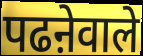
पढऩेवाले